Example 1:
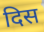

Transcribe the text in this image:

दिस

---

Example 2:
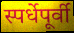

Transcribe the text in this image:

स्पर्धेपूर्वी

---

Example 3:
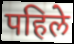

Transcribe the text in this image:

पहिले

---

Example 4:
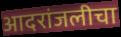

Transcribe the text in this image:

आदरांजलीचा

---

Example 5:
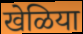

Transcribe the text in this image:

खेळिया